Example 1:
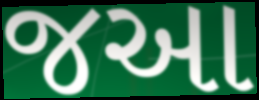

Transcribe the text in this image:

જઆ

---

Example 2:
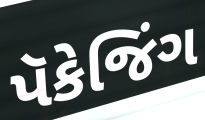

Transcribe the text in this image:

પૅકેજિંગ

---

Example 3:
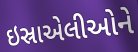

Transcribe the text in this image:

ઇસ્રાએલીઓને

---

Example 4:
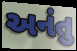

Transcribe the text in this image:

અનંતુ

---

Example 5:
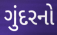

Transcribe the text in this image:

ગુંદરનો